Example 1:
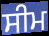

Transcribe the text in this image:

ਸੀਮ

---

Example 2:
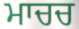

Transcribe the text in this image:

ਮਾਚਚ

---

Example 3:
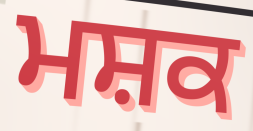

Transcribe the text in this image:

ਮਸ਼ਕ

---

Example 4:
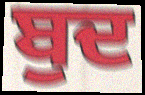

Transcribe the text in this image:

ਬੁਦ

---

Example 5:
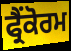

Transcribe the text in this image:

ਫ੍ਰੈਂਕੋਰਮ